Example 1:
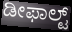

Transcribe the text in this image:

ಡೀಫಾಲ್ಟ್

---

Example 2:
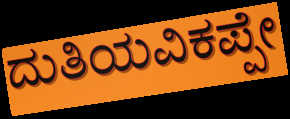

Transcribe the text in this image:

ದುತಿಯವಿಕಪ್ಪೇ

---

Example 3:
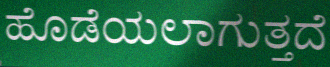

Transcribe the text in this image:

ಹೊಡೆಯಲಾಗುತ್ತದೆ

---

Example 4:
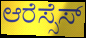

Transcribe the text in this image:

ಆರೆಸ್ಸೆಸ್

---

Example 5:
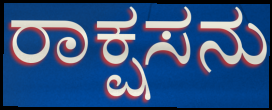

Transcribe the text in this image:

ರಾಕ್ಷಸನು